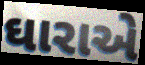
ઘારાએ